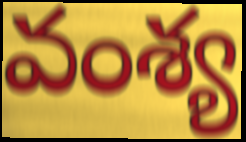
వంశ్య